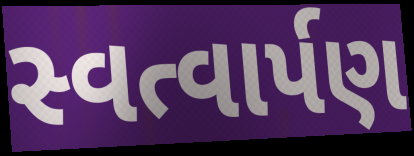
સ્વત્વાર્પણ